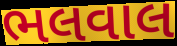
ભલવાલ